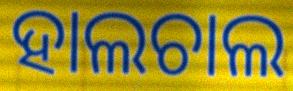
ହାଲଚାଲ